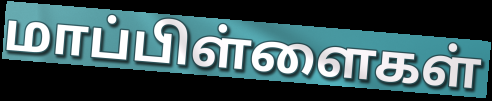
மாப்பிள்ளைகள்